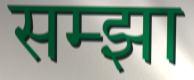
सम्झा